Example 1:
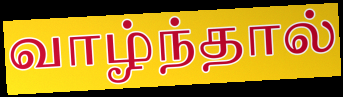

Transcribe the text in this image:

வாழ்ந்தால்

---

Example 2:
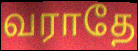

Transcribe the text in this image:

வராதே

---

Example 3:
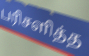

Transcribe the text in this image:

பரிசளித்த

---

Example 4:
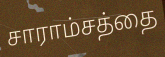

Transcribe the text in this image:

சாராம்சத்தை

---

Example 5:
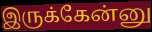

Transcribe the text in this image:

இருக்கேன்னு